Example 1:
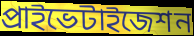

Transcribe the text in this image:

প্রাইভেটাইজেশন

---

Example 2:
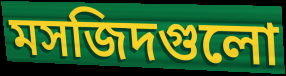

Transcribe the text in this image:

মসজিদগুলো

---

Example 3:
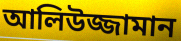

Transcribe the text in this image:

আলিউজ্জামান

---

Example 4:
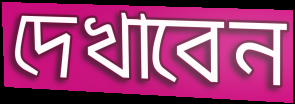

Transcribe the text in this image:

দেখাবেন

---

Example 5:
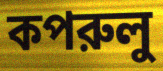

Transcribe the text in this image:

কপরুলু